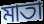
মাতা